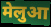
मेलुआ